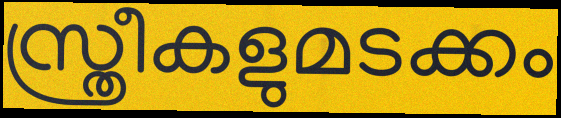
സ്ത്രീകളുമടക്കം